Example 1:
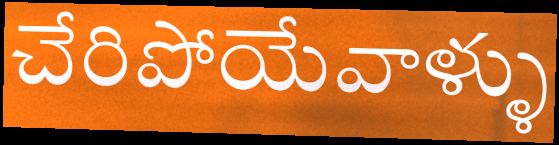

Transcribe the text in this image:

చేరిపోయేవాళ్ళు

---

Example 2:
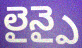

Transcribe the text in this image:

లైన్పై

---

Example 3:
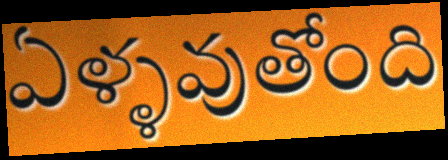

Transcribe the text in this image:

ఏళ్ళవుతోంది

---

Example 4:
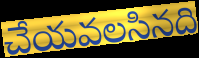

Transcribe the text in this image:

చేయవలసినది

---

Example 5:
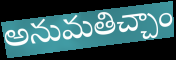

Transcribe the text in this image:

అనుమతిచ్చాం